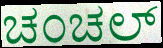
ಚಂಚಲ್